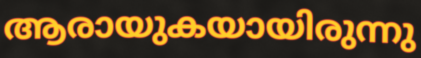
ആരായുകയായിരുന്നു